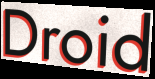
Droid